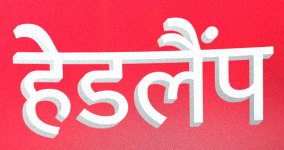
हेडलैंप